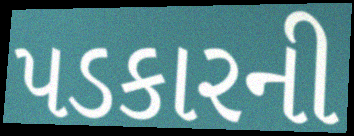
પડકારની